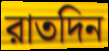
রাতদিন